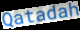
Qatadah